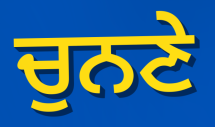
ਚੁਨਣੇ